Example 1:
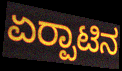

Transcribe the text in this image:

ಏರ‍್ಪಾಟಿನ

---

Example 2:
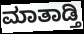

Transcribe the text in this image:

ಮಾತಾಡ್ತಿ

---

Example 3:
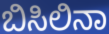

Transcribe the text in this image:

ಬಿಸಿಲಿನಾ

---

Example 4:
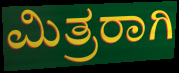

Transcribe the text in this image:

ಮಿತ್ರರಾಗಿ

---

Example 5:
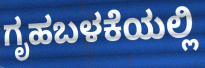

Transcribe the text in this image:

ಗೃಹಬಳಕೆಯಲ್ಲಿ